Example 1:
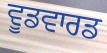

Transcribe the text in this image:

ਵੂਡਵਾਰਡ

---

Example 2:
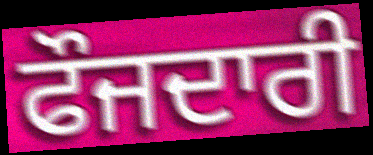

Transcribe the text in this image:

ਫੌਜਦਾਰੀ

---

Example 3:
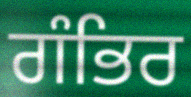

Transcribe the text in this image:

ਗੰਭਿਰ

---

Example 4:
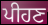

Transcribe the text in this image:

ਪੀਹਣ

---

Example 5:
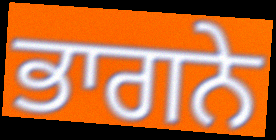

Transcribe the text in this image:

ਭਾਗਨੇ